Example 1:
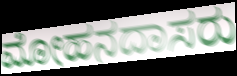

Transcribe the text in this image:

ಮೋಹನದಾಸರು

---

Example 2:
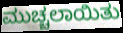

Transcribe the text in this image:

ಮುಚ್ಚಲಾಯಿತು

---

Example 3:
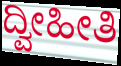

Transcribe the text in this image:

ದ್ವೀಹೀತಿ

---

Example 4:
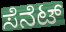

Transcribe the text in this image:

ಸೆನೆಟ್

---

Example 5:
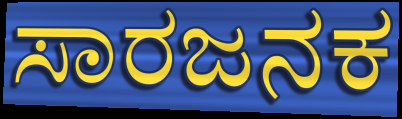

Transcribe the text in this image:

ಸಾರಜನಕ